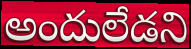
అందులేడని